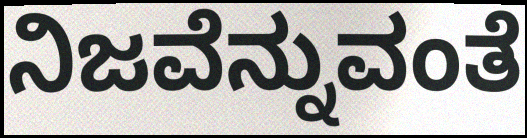
ನಿಜವೆನ್ನುವಂತೆ